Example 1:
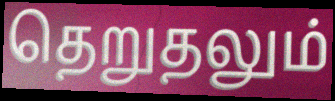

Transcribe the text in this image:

தெறுதலும்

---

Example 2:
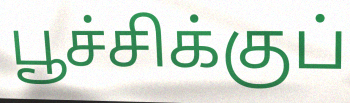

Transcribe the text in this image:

பூச்சிக்குப்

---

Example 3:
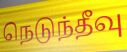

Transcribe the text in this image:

நெடுந்தீவு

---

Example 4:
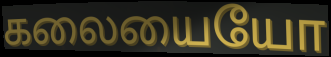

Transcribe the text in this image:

கலையையோ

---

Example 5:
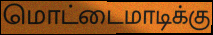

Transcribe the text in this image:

மொட்டைமாடிக்கு